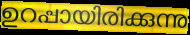
ഉറപ്പായിരിക്കുന്നു